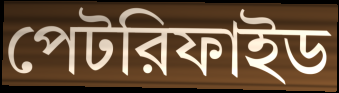
পেটরিফাইড